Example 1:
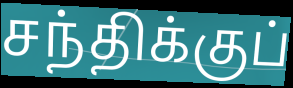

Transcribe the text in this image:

சந்திக்குப்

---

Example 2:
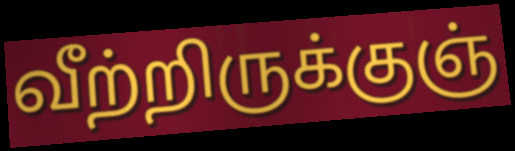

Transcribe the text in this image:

வீற்றிருக்குஞ்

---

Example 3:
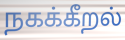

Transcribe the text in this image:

நகக்கீறல்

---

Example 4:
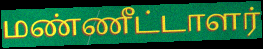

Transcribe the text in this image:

மண்ணீட்டாளர்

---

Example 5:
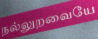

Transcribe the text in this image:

நல்லுறவையே